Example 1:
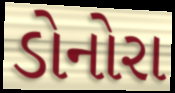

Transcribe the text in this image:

ડોનોરા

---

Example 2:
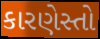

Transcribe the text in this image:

કારણેસ્તો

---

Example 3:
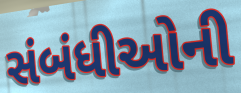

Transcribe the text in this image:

સંબંધીઓની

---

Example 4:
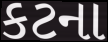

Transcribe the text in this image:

કટના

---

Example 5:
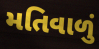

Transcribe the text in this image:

મતિવાળું